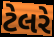
ટેલરે